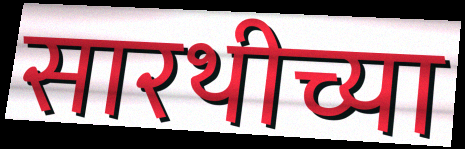
सारथीच्या